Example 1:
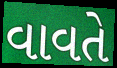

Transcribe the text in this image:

વાવતે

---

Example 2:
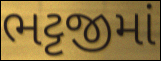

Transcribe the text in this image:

ભટ્ટજીમાં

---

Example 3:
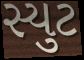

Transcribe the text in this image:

સ્યુટ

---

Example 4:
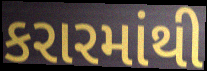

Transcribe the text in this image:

કરારમાંથી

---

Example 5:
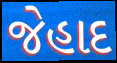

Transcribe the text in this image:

જેહાદ